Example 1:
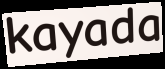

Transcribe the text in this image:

kayada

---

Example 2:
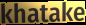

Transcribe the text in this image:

khatake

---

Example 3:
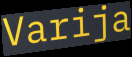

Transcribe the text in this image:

Varija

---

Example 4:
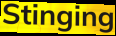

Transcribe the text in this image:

Stinging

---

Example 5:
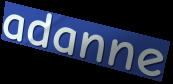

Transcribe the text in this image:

adanne